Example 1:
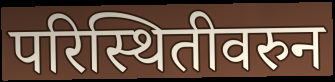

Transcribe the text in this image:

परिस्थितीवरुन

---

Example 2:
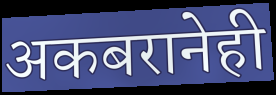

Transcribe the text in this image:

अकबरानेही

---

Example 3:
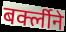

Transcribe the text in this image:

बर्क्लीने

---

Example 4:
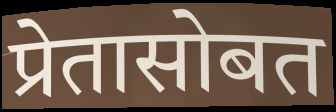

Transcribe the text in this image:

प्रेतासोबत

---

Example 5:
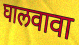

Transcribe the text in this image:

घालवावा